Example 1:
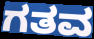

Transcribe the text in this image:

ಗತವ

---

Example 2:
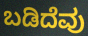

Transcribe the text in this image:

ಬಡಿದೆವು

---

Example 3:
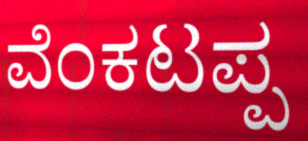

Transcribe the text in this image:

ವೆಂಕಟಪ್ಪ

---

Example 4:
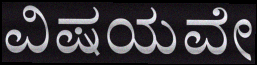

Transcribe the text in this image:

ವಿಷಯವೇ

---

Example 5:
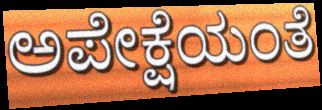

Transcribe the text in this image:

ಅಪೇಕ್ಷೆಯಂತೆ